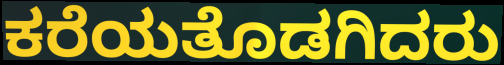
ಕರೆಯತೊಡಗಿದರು